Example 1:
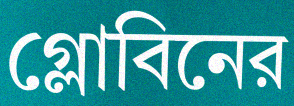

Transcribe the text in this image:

গ্লোবিনের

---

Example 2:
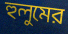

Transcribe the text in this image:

হুলুমের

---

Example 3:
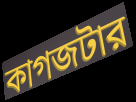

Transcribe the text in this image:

কাগজটার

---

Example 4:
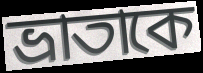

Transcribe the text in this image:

ভ্রাতাকে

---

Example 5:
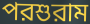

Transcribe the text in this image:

পরশুরাম